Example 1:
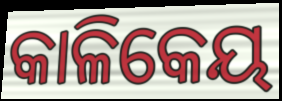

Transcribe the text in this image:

କାଳିକେୟ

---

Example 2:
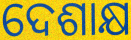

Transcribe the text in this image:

ଦେଶାକ୍ଷ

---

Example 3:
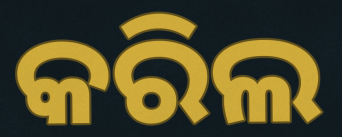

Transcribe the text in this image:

କରିଲ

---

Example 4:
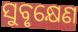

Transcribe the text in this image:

ସୁବୃକ୍ଷେଣ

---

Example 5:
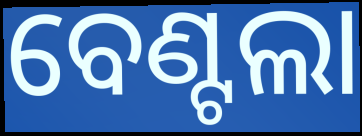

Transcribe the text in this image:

ବେଣ୍ଟଲା